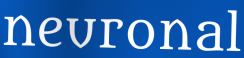
neuronal